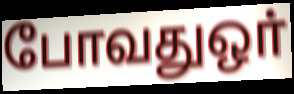
போவதுஒர்